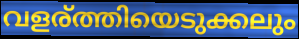
വളര്ത്തിയെടുക്കലും